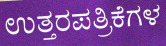
ಉತ್ತರಪತ್ರಿಕೆಗಳ